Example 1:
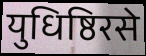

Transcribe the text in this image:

युधिष्ठिरसे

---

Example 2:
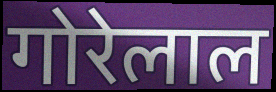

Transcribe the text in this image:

गोरेलाल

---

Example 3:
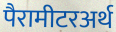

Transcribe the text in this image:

पैरामीटरअर्थ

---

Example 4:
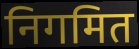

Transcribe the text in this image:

निगमित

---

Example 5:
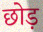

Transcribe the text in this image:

छोड़